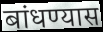
बांधण्यास